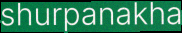
shurpanakha